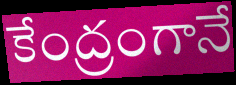
కేంద్రంగానే